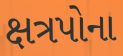
ક્ષત્રપોના